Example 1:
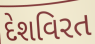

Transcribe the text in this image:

દેશવિરત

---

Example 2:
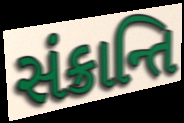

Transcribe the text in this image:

સંક્રાન્તિ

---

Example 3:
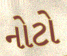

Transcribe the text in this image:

નોટો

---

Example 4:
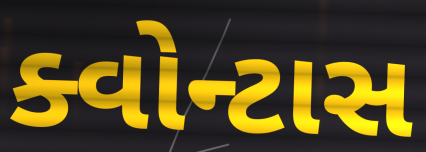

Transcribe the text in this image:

ક્વોન્ટાસ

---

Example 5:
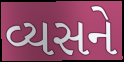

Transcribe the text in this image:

વ્યસને